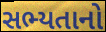
સભ્યતાનો